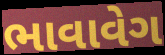
ભાવાવેગ